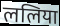
ललिया